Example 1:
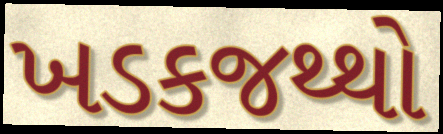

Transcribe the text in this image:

ખડકજથ્થો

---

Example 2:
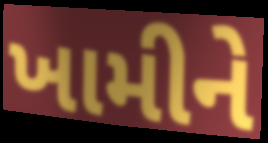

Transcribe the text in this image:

ખામીને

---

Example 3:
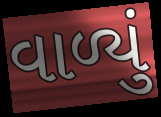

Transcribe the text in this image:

વાળ્યું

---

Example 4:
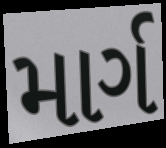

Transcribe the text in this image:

માર્ગ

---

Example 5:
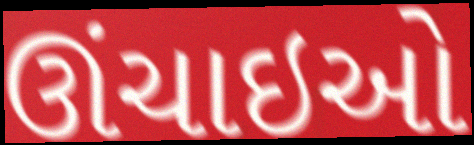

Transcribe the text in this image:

ઊંચાઇઓ